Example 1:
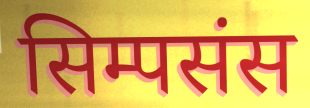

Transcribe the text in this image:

सिम्पसंस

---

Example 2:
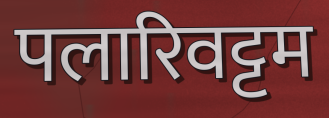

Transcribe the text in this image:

पलारिवट्टम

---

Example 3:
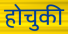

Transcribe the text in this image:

होचुकी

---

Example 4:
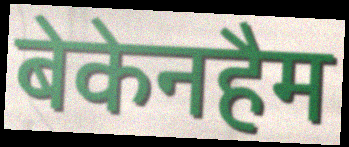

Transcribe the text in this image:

बेकेनहैम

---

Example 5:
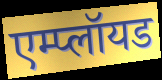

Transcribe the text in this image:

एम्प्लॉयड